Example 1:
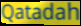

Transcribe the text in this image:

Qatadah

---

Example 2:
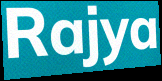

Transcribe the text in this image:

Rajya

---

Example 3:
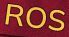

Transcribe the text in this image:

ROS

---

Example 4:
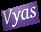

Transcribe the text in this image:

Vyas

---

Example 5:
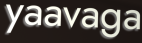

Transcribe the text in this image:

yaavaga